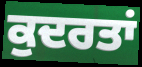
ਕੁਦਰਤਾਂ